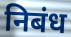
निबंध